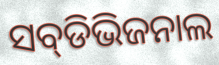
ସବ୍‌ଡିଭିଜନାଲ